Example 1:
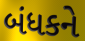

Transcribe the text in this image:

બંધકને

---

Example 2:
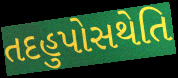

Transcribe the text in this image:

તદહુપોસથેતિ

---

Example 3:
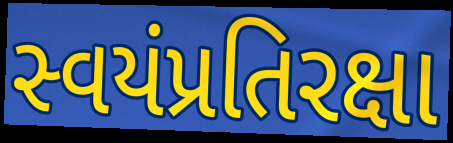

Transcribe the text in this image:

સ્વયંપ્રતિરક્ષા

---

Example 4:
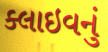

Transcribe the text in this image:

ક્લાઇવનું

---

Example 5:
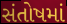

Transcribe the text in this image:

સંતોષમાં